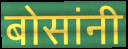
बोसांनी